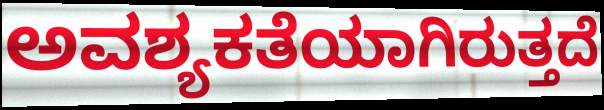
ಅವಶ್ಯಕತೆಯಾಗಿರುತ್ತದೆ